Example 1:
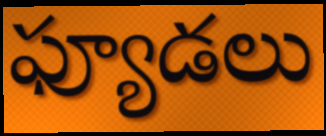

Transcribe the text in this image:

ఫ్యూడలు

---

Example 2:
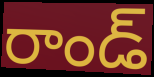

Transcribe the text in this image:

రాండ్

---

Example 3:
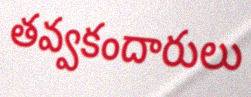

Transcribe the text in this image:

తవ్వకందారులు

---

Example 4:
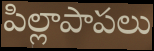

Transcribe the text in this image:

పిల్లాపాపలు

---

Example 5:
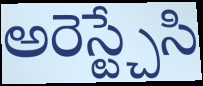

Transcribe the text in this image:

అరెస్ట్చేసి